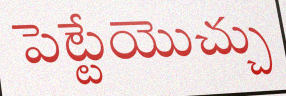
పెట్టేయొచ్చు